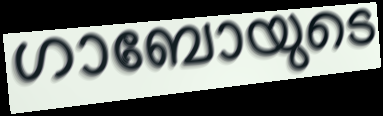
ഗാബോയുടെ